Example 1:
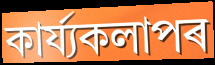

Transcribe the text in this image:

কাৰ্য্যকলাপৰ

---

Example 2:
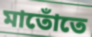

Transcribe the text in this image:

মাতোঁতে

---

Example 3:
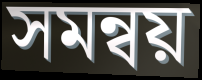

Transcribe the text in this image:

সমন্বয়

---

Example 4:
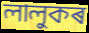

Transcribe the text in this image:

লালুকৰ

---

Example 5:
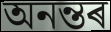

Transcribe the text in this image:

অনন্তৰ